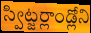
స్విట్జర్లాండ్లోని